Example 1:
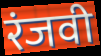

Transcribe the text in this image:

रंजवी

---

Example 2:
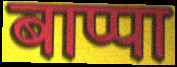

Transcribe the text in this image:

बाप्पा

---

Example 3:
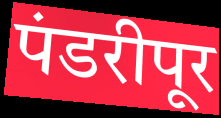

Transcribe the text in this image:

पंडरीपूर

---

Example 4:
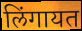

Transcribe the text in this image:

लिंगायत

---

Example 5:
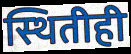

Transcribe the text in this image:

स्थितीही